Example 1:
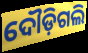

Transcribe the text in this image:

ଦୌଡ଼ିଗଲି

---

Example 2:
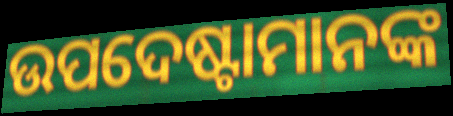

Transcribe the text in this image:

ଉପଦେଷ୍ଟାମାନଙ୍କ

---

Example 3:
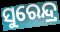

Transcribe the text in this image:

ସୁରେନ୍ଦ୍ର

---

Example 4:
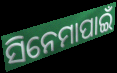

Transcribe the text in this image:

ସିନେମାପାଇଁ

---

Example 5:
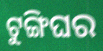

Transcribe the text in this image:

ଟୁଙ୍ଗିଘର